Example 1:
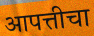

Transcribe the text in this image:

आपत्तीचा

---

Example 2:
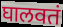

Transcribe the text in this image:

घालवतं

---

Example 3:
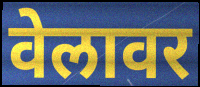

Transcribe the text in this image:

वेलावर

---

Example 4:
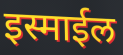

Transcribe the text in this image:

इस्माईल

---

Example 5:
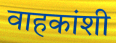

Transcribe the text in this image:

वाहकांशी